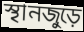
স্থানজুড়ে